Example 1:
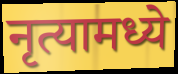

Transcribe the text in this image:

नृत्यामध्ये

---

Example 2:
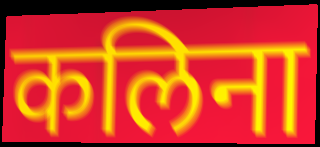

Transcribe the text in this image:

कलिना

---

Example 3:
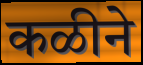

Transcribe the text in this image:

कळीने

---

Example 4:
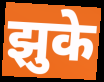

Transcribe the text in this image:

झुके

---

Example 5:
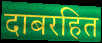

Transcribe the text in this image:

दाबरहित